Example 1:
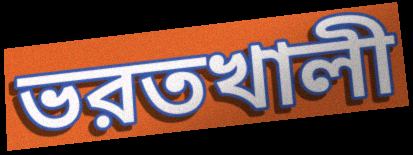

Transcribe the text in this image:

ভরতখালী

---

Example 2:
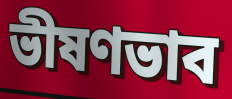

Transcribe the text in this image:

ভীষণভাব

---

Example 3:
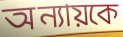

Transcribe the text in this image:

অন্যায়কে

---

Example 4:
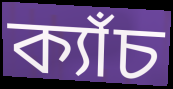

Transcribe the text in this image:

ক্যাঁচ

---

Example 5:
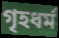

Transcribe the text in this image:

গৃহধর্ম